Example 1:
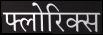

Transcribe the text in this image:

फ्लोरिक्स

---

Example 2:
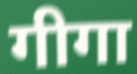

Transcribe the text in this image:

गीगा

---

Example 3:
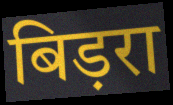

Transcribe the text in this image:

बिड़रा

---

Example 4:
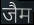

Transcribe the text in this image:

जैम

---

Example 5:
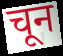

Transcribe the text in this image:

चून